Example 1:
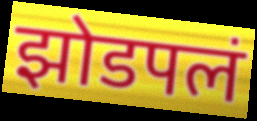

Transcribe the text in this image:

झोडपलं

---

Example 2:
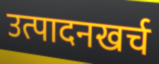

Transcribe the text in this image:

उत्पादनखर्च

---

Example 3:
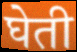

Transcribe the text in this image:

घेती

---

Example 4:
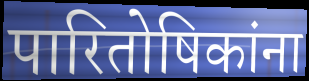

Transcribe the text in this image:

पारितोषिकांना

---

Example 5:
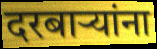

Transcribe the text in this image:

दरबाऱ्यांना